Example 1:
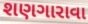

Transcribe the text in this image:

શણગારાવા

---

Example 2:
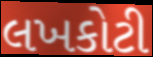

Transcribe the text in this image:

લખકોટી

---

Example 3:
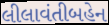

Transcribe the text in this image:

લીલાવંતીબહેન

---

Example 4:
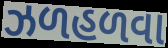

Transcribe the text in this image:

ઝળહળવા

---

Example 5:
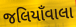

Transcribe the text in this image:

જલિયાઁવાલા